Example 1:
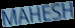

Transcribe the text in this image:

MAHESH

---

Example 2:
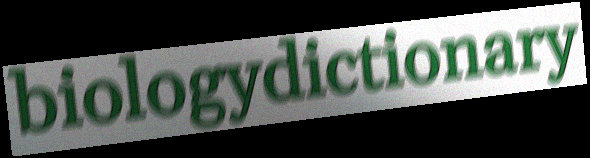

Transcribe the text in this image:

biologydictionary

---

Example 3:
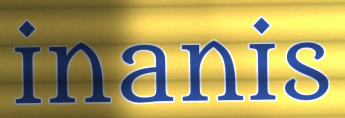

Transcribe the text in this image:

inanis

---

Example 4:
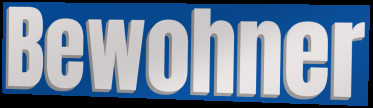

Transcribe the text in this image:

Bewohner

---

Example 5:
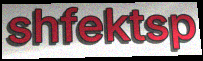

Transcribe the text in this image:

shfektsp